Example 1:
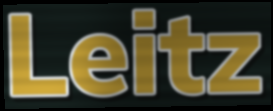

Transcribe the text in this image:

Leitz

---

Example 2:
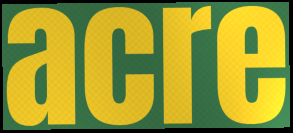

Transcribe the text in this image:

acre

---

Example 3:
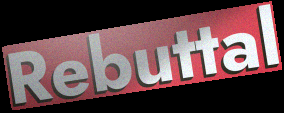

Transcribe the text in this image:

Rebuttal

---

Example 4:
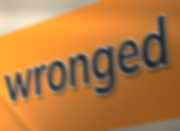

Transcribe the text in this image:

wronged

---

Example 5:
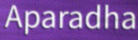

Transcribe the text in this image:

Aparadha